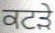
ਕਟੜੇ